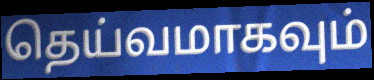
தெய்வமாகவும்